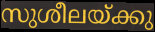
സുശീലയ്ക്കു